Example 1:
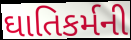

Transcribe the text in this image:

ઘાતિકર્મની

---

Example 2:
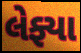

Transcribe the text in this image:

લેફ્યા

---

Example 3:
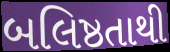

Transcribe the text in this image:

બલિષ્ઠતાથી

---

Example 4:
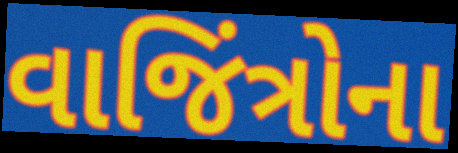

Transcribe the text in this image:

વાજિંત્રોના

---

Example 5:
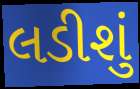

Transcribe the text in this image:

લડીશું